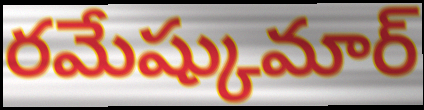
రమేష్కుమార్